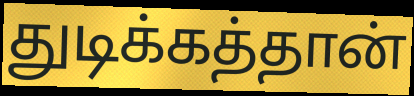
துடிக்கத்தான்